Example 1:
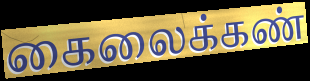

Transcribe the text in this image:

கைலைக்கண்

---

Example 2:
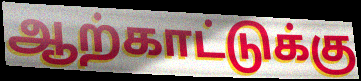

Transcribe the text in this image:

ஆற்காட்டுக்கு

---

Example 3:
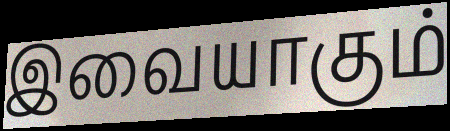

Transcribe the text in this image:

இவையாகும்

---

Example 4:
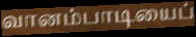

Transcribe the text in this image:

வானம்பாடியைப்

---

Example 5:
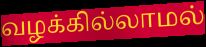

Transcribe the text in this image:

வழக்கில்லாமல்